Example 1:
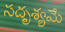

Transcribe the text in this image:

సదృశ్యమే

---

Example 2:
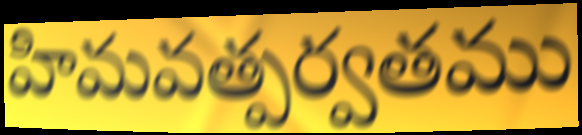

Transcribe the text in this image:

హిమవత్పర్వతము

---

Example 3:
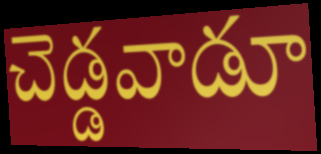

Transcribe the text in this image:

చెడ్డవాడూ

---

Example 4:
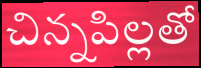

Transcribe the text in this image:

చిన్నపిల్లతో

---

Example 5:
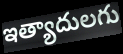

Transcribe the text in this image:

ఇత్యాదులగు